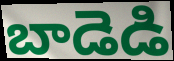
బాడెడి